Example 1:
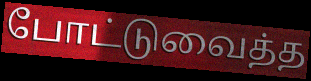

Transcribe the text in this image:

போட்டுவைத்த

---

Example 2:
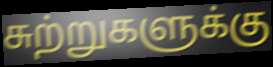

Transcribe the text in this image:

சுற்றுகளுக்கு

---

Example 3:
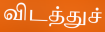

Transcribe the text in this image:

விடத்துச்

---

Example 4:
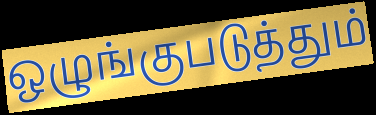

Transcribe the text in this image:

ஒழுங்குபடுத்தும்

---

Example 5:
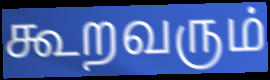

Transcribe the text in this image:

கூறவரும்